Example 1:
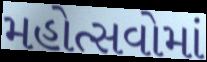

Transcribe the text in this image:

મહોત્સવોમાં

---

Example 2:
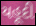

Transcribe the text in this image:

યહૂદી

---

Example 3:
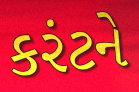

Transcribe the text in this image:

કરંટને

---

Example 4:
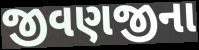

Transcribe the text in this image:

જીવણજીના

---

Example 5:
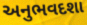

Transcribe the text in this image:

અનુભવદશા